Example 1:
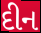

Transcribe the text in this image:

દીન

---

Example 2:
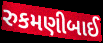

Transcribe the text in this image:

રુકમણીબાઈ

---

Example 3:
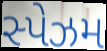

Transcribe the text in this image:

સ્પેઝમ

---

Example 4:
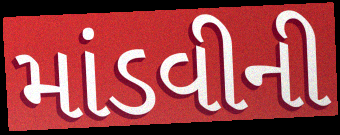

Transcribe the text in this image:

માંડવીની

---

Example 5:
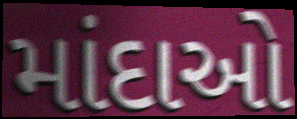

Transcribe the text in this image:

માંદાઓ